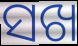
ସଖ